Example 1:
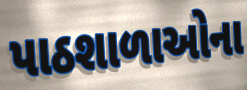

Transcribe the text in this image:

પાઠશાળાઓના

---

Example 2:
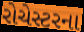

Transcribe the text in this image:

રોચેસ્ટરના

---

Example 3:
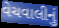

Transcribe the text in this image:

વેચવાલીનું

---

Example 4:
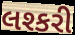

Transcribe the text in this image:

લશ્કરી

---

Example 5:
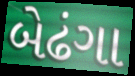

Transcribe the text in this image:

બેઢંગા